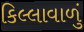
કિલ્લાવાળું